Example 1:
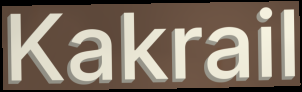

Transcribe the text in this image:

Kakrail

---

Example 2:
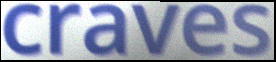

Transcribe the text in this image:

craves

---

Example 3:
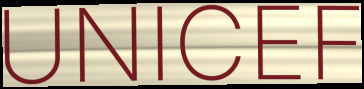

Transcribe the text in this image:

UNICEF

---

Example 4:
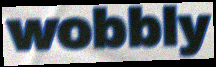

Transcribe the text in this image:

wobbly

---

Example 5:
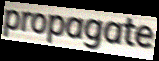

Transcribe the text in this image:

propagate